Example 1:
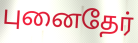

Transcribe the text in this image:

புனைதேர்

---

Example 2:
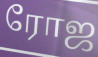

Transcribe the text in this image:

ரோஜ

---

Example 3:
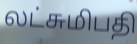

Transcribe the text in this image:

லட்சுமிபதி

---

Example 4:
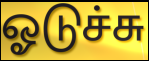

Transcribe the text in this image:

ஓடுச்சு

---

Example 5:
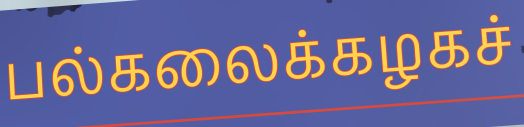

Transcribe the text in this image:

பல்கலைக்கழகச்